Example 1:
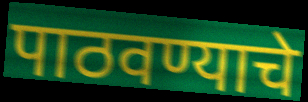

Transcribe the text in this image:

पाठवण्याचे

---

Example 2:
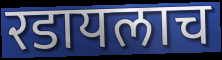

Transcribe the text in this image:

रडायलाच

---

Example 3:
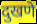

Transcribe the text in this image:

दुखणे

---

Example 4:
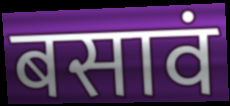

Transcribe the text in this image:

बसावं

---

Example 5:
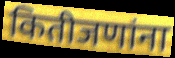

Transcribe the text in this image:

कितीजणांना